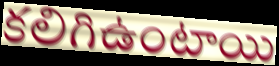
కలిగిఉంటాయి